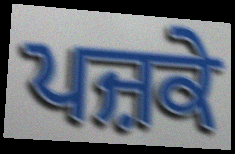
ਪਜ਼ਕੇ